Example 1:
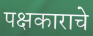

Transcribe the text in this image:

पक्षकाराचे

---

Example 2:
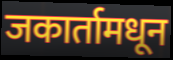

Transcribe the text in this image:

जकार्तामधून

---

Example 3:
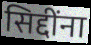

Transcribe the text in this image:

सिद्दींना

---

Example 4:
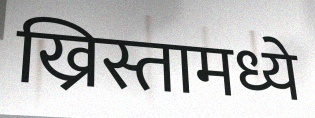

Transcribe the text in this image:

ख्रिस्तामध्ये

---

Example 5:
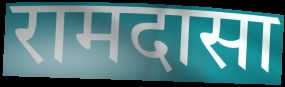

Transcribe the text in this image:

रामदासा